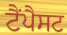
ਟੈਂਪੈਸਟ